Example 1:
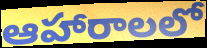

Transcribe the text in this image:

ఆహారాలలో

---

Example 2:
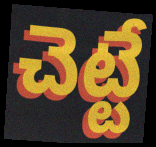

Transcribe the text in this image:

చెట్టే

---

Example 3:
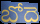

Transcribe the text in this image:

బోదె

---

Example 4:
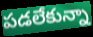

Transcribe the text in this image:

పడలేకున్నా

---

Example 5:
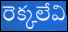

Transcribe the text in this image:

రెక్కలేవి